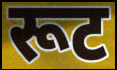
रूट